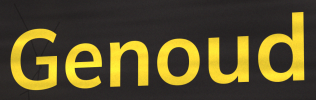
Genoud